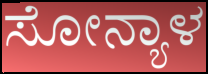
ಸೋನ್ಯಾಳ